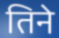
तिने